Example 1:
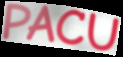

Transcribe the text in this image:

PACU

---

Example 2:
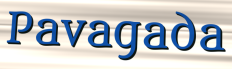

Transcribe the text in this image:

Pavagada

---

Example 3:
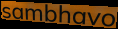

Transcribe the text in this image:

sambhavo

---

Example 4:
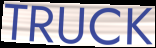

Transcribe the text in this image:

TRUCK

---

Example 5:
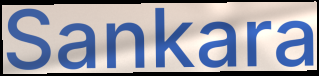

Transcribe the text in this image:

Sankara